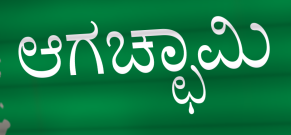
ಆಗಚ್ಛಾಮಿ